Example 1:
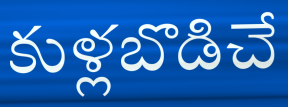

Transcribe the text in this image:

కుళ్లబొడిచే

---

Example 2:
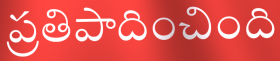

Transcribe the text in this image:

ప్రతిపాదించింది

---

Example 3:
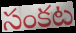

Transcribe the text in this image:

సంకట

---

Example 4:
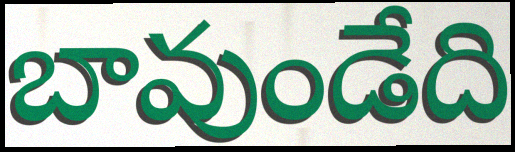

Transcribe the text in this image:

బావుండేది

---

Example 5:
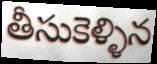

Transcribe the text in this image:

తీసుకెళ్ళిన